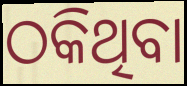
ଠକିଥିବା